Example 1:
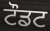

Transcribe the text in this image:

ਟੌਡਟ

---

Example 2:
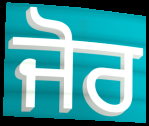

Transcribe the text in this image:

ਜੋਰ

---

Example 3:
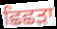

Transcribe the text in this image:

ਛਿਛੜਾ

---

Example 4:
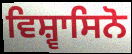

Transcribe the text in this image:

ਵਿਸ਼੍ਵਾਸਿਨੋ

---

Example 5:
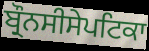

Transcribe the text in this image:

ਬ੍ਰੌਨਸੀਸੇਪਟਿਕਾ